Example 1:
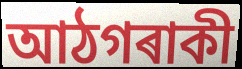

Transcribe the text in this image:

আঠগৰাকী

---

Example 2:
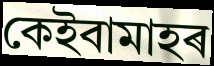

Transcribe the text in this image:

কেইবামাহৰ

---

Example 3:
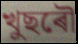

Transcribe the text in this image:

খুছৰৌ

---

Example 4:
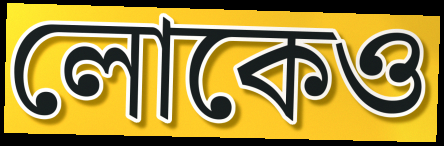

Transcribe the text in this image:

লোকেও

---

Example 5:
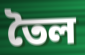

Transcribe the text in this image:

তৈল